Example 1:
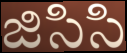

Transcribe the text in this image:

జిసిసి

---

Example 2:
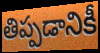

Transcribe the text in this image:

తిప్పడానికీ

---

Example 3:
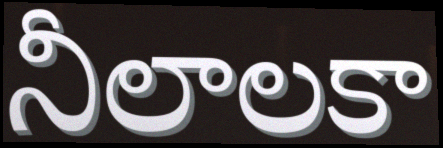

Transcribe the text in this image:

నీలాలకా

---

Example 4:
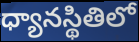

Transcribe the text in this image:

ధ్యానస్థితిలో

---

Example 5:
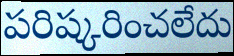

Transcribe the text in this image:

పరిష్కరించలేదు